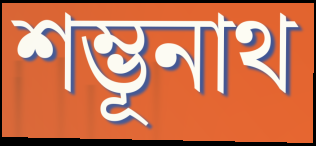
শম্ভূনাথ